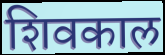
शिवकाल